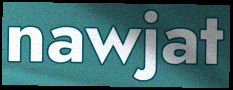
nawjat